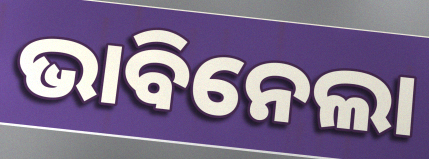
ଭାବିନେଲା